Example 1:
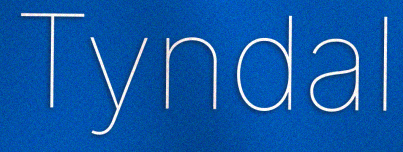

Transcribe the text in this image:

Tyndal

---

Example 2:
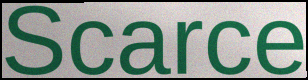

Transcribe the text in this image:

Scarce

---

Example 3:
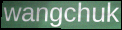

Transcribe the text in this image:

wangchuk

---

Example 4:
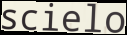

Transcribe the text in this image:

scielo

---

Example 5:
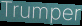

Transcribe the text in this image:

Trumper